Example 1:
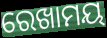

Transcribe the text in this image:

ରେଖାମୟ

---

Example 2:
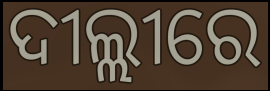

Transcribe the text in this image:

ଦୀଲ୍ଲୀରେ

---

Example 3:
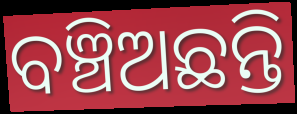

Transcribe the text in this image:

ବଞ୍ଚିଅଛନ୍ତି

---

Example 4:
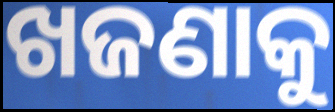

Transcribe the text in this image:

ଖଜଣାକୁ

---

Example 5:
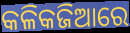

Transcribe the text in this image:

କଳିକଜିଆରେ